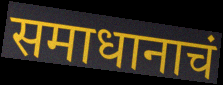
समाधानाचं